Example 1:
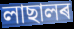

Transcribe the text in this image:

লাছালৰ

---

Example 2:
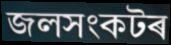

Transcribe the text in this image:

জলসংকটৰ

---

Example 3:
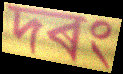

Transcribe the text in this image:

দৰং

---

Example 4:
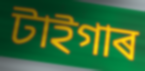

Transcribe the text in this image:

টাইগাৰ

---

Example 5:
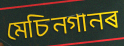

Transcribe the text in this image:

মেচিনগানৰ